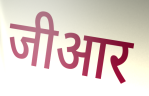
जीआर